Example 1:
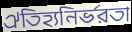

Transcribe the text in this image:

ঐতিহ্যনির্ভরতা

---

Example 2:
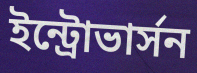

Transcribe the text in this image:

ইন্ট্রোভার্সন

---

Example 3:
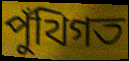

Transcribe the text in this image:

পুঁথিগত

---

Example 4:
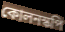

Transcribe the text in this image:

কোলনস্কপি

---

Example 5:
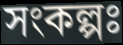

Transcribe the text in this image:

সংকল্পঃ